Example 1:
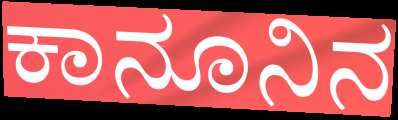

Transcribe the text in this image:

ಕಾನೂನಿನ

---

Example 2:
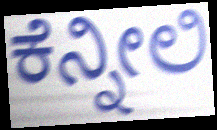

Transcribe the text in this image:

ಕೆನ್ನೀಲಿ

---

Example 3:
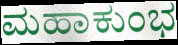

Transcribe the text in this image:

ಮಹಾಕುಂಭ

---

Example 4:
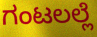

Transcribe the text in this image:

ಗಂಟಲಲ್ಲೆ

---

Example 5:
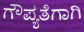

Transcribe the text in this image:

ಗೌಪ್ಯತೆಗಾಗಿ